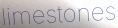
limestones